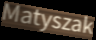
Matyszak